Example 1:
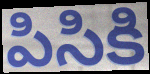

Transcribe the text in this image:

పిసికి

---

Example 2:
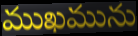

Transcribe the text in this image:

ముఖమును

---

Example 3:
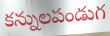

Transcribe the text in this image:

కన్నులపండుగ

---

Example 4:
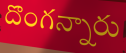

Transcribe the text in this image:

దొంగన్నారు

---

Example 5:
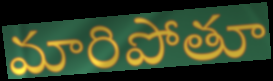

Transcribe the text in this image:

మారిపోతూ